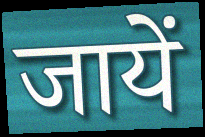
जायें